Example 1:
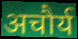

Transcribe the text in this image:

अचौर्य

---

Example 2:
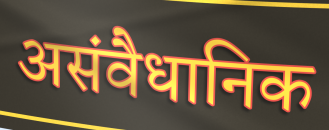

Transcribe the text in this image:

असंवैधानिक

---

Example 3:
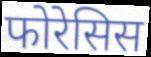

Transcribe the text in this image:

फोरेसिस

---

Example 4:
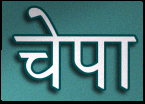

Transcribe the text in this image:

चेपा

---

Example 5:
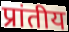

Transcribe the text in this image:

प्रांतीय